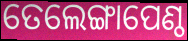
ତେଲେଙ୍ଗାପେଣ୍ଠ